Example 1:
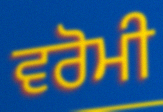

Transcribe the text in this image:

ਵਰੋਮੀ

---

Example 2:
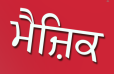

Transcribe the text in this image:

ਮੈਜ਼ਿਕ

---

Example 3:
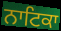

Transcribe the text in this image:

ਨਾਟਿਕਾ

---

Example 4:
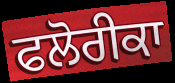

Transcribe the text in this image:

ਫਲੋਰੀਕਾ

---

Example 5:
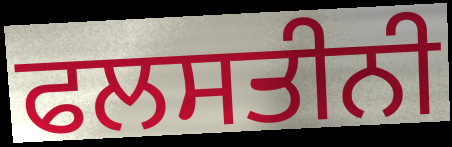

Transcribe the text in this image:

ਫਲਸਤੀਨੀ